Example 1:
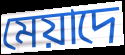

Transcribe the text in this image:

মেয়াদে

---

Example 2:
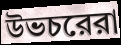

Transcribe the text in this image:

উভচরেরা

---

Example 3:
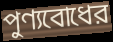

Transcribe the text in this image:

পুণ্যবোধের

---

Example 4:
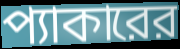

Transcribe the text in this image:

প্যাকারের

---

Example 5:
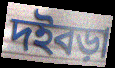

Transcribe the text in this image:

দইবড়া